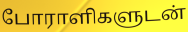
போராளிகளுடன்